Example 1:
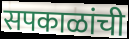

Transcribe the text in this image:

सपकाळांची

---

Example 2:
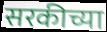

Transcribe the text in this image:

सरकीच्या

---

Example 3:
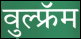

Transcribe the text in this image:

वुल्फ्रॅम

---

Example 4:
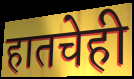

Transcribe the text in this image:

हातचेही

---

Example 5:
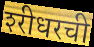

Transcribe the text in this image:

श्रीधरची